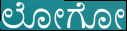
ಲೋಗೋ